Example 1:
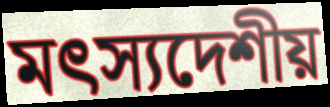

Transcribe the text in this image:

মৎস্যদেশীয়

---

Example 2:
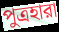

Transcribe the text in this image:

পুত্রহারা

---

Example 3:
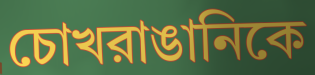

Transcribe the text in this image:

চোখরাঙানিকে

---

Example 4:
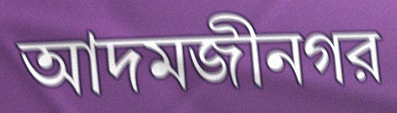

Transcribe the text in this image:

আদমজীনগর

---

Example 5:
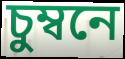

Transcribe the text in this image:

চুম্বনে